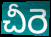
చీరె